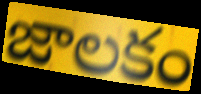
జాలకం